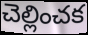
చెల్లించక